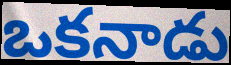
ఒకనాడు